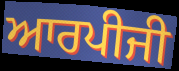
ਆਰਪੀਜੀ